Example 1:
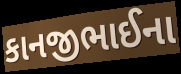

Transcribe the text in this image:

કાનજીભાઈના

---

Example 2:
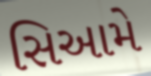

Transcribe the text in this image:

સિઆમે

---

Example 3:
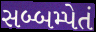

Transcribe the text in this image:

સબ્બમ્પેતં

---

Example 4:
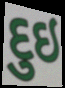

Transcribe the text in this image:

દુઇ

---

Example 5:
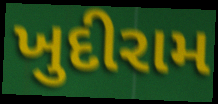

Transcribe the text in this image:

ખુદીરામ